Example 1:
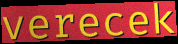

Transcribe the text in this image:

verecek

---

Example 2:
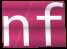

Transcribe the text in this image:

nf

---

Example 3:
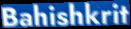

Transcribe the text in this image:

Bahishkrit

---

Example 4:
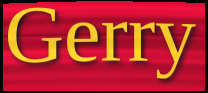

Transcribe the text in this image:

Gerry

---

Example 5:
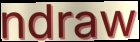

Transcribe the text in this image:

ndraw